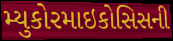
મ્યુકોરમાઇકોસિસની